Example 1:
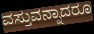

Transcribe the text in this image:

ವಸ್ತುವನ್ನಾದರೂ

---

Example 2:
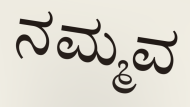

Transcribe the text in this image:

ನಮ್ಮವ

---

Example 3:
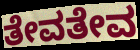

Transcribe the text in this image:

ತೇವತೇವ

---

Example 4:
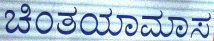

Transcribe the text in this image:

ಚಿಂತಯಾಮಾಸ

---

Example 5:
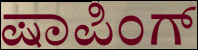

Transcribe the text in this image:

ಷಾಪಿಂಗ್